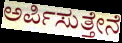
ಅರ್ಪಿಸುತ್ತೇನೆ